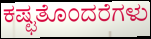
ಕಷ್ಟತೊಂದರೆಗಳು